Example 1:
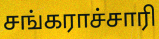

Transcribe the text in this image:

சங்கராச்சாரி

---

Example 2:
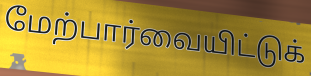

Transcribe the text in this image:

மேற்பார்வையிட்டுக்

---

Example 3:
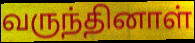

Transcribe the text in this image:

வருந்தினாள்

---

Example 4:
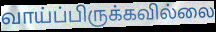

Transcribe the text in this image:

வாய்ப்பிருக்கவில்லை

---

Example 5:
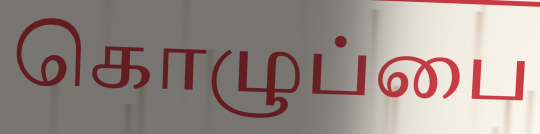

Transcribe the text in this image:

கொழுப்பை